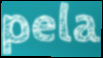
pela